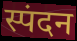
स्पंदन